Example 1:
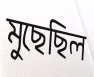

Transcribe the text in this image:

মুছেছিল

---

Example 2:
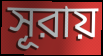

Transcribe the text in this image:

সূরায়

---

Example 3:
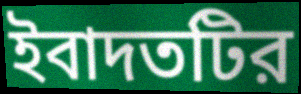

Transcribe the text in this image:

ইবাদতটির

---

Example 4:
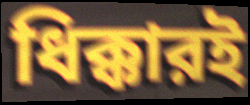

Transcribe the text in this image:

ধিক্কারই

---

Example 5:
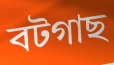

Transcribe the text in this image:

বটগাছ